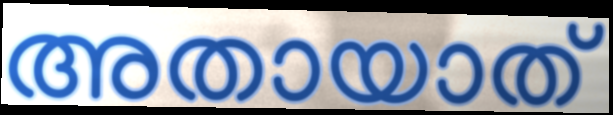
അതായാത്